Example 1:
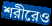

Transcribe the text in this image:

শরীরেও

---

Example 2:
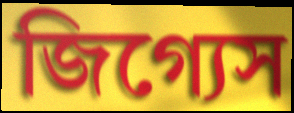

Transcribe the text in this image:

জিগ্যেস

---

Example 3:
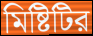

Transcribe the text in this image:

মিষ্টিটির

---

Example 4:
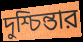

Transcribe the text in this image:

দুশ্চিন্তার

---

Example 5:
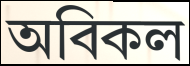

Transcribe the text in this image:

অবিকল